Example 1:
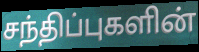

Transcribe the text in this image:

சந்திப்புகளின்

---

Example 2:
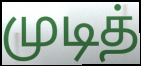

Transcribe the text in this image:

முடித்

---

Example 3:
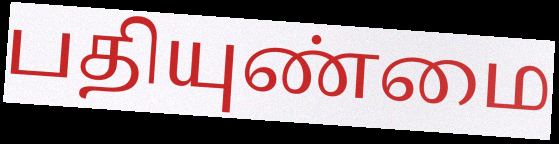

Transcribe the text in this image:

பதியுண்மை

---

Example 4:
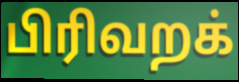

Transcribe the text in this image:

பிரிவறக்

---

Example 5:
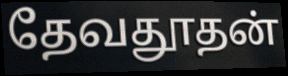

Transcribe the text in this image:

தேவதூதன்